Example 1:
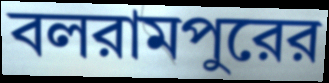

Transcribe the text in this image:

বলরামপুরের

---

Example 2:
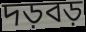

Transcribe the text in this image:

দড়বড়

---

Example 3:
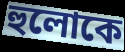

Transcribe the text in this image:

হুলোকে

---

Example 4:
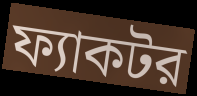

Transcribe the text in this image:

ফ্যাকটর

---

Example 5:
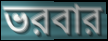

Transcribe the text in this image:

ভরবার